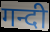
गन्दी